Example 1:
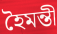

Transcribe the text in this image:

হৈমন্তী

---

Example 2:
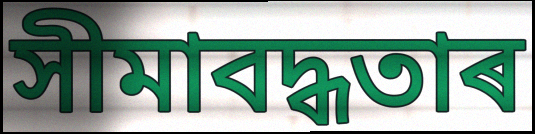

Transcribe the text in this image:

সীমাবদ্ধতাৰ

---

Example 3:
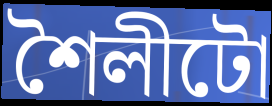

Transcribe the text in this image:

শৈলীটো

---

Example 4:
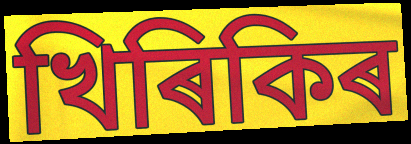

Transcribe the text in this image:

খিৰিকিৰ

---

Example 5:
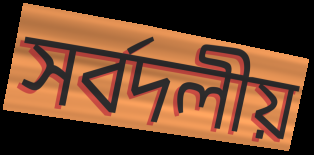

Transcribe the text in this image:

সৰ্বদলীয়